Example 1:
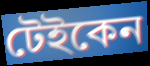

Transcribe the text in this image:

টেইকেন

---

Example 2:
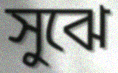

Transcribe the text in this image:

সুঝে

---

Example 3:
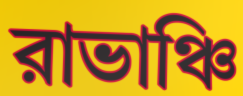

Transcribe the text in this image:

রাভাঞ্চি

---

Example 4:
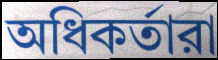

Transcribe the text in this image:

অধিকর্তারা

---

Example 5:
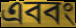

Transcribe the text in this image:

এববং